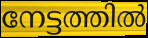
നേട്ടത്തിൽ